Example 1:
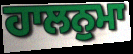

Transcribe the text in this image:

ਹਾਲਨੁਮਾ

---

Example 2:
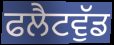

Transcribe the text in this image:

ਫਲੈਟਵੁੱਡ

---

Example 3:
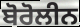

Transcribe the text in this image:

ਬੋਰੋਲੀਨ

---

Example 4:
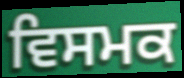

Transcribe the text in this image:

ਵਿਸਮਕ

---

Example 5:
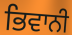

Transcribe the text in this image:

ਭਿਵਾਨੀ